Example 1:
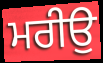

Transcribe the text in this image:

ਮਰੀਉ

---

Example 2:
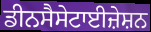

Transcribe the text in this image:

ਡੀਨਸੈਸੇਟਾਈਜ਼ੇਸ਼ਨ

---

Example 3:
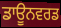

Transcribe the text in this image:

ਡਾਊਨਵਰਡ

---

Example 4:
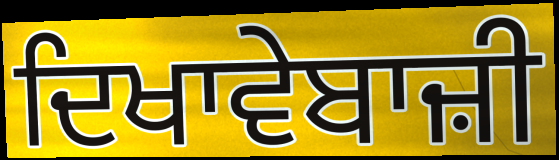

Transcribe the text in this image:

ਦਿਖਾਵੇਬਾਜ਼ੀ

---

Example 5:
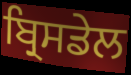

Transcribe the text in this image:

ਬ੍ਰਿਸਡੇਲ